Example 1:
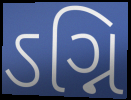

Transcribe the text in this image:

ઽગ્નિ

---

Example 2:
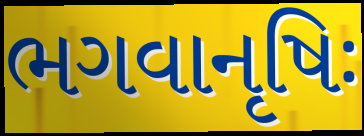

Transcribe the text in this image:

ભગવાનૃષિઃ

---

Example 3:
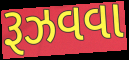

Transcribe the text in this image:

રૂઝવવા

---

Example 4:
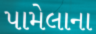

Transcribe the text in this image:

પામેલાના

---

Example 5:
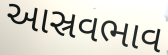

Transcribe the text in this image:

આસ્રવભાવ